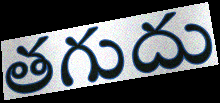
తగుదు